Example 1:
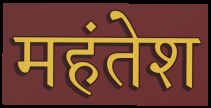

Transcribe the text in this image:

महंतेश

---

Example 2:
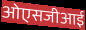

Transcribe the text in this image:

ओएसजीआई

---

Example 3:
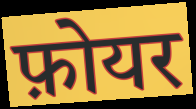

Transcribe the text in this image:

फ़ोयर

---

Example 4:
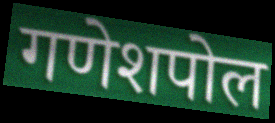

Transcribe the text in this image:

गणेशपोल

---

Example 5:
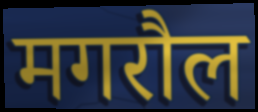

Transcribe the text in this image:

मगरौल